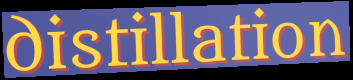
distillation